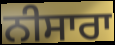
ਨੀਸਾਰਾ